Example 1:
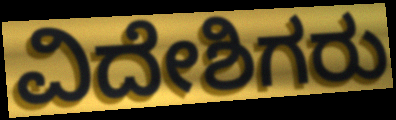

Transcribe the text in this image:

ವಿದೇಶಿಗರು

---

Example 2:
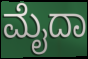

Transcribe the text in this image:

ಮೈದಾ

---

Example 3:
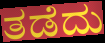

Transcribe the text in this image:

ತಡೆದು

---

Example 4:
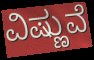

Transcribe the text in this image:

ವಿಷ್ಣುವೆ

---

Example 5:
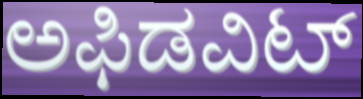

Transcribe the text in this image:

ಅಫಿಡವಿಟ್